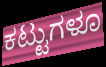
ಕಟ್ಟುಗಳೂ